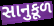
સાનુકૂળ